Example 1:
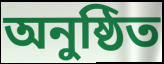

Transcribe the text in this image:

অনুষ্ঠিত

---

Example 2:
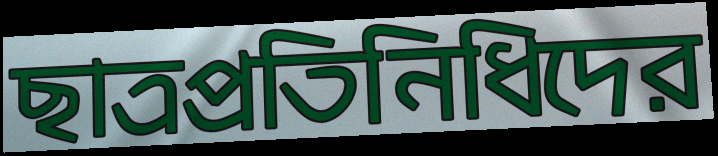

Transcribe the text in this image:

ছাত্রপ্রতিনিধিদের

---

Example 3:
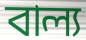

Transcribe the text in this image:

বাল্য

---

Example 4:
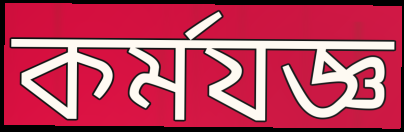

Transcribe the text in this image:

কর্মযজ্ঞ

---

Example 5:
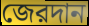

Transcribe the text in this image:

জেরদান